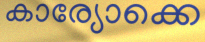
കാര്യോക്കെ